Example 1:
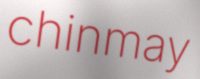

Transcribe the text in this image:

chinmay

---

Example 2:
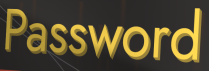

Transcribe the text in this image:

Password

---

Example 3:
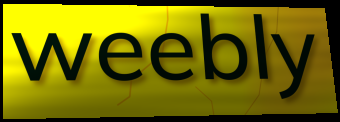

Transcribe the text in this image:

weebly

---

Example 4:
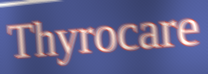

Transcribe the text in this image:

Thyrocare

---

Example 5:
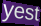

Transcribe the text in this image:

yest